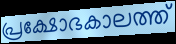
പ്രക്ഷോഭകാലത്ത്